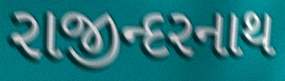
રાજીન્દરનાથ